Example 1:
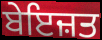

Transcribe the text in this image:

ਬੇਇਜ਼ਤ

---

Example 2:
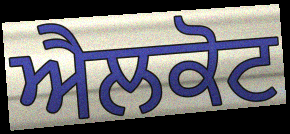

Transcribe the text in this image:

ਐਲਕੋਟ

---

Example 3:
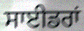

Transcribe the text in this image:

ਸਾਈਡਰਾਂ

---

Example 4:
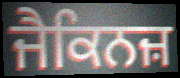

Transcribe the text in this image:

ਜੈਕਿਨਜ਼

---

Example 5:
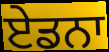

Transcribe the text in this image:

ਏਡਨਾ